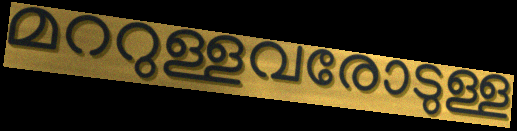
മററുള്ളവരോടുള്ള